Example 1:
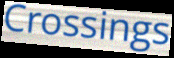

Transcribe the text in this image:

Crossings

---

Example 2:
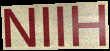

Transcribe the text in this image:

NIIH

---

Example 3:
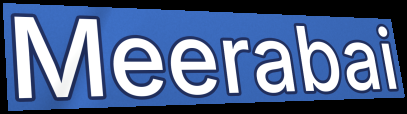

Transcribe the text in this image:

Meerabai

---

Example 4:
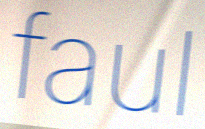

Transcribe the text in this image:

faul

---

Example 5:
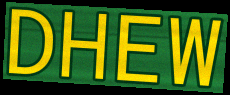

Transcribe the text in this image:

DHEW